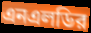
এনএলডির